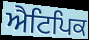
ਐਟਿਪਿਕ